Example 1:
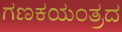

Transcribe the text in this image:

ಗಣಕಯಂತ್ರದ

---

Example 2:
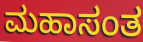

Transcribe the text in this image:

ಮಹಾಸಂತ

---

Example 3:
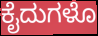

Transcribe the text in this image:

ಕೈದುಗಳೊ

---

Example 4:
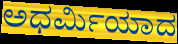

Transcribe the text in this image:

ಅಧರ್ಮಿಯಾದ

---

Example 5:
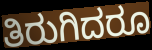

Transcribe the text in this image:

ತಿರುಗಿದರೂ